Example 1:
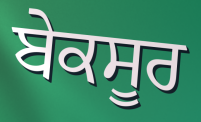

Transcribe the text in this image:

ਬੇਕਸੂਰ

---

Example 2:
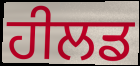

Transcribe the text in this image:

ਹੀਲਡ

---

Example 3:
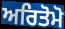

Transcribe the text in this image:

ਅਰਿਤੋਮੋ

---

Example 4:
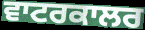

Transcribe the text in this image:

ਵਾਟਰਕਾਲਰ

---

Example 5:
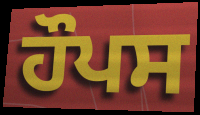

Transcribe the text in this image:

ਹੌਪਸ